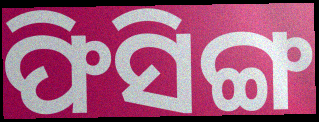
ଫିସିଙ୍ଗ